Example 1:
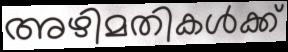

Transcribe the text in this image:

അഴിമതികൾക്ക്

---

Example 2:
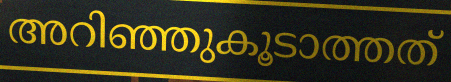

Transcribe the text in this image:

അറിഞ്ഞുകൂടാത്തത്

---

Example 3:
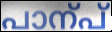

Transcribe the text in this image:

പാന്പ്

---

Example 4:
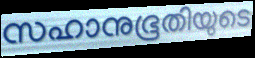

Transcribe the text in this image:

സഹാനുഭൂതിയുടെ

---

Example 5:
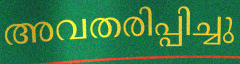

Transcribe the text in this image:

അവതരിപ്പിച്ചു